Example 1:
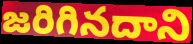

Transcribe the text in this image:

జరిగినదాని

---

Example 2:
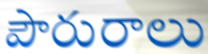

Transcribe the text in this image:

పౌరురాలు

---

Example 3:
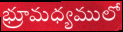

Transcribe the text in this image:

భ్రూమధ్యములో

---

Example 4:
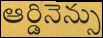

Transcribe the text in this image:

ఆర్డినెన్సు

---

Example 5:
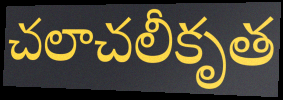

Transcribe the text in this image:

చలాచలీకృత